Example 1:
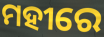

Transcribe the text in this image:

ମହୀରେ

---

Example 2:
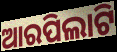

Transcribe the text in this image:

ଆରପିଲାଟି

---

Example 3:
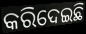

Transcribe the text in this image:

କରିଦେଇଛି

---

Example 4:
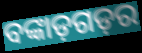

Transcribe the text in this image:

ବଙ୍କାଡ଼ଗଡ଼ର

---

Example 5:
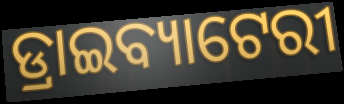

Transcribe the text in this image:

ଡ୍ରାଇବ୍ୟାଟେରୀ